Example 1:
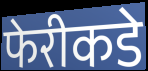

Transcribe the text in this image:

फेरीकडे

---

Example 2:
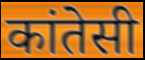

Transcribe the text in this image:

कांतेसी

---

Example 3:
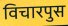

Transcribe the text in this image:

विचारपुस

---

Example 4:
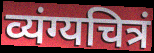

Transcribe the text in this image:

व्यंग्यचित्रं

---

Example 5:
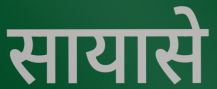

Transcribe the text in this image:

सायासे